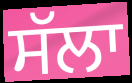
ਸੱਲਾ